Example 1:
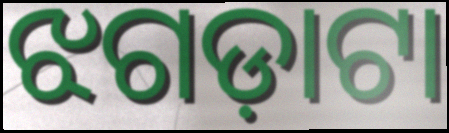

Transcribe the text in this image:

ଝଗଡ଼ାଟା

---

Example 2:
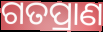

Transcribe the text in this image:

ଗତପ୍ରାଣ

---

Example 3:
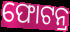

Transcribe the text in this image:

ଫୋଟନ୍ର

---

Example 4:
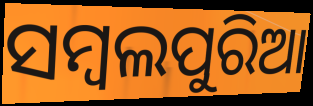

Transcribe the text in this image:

ସମ୍ୱଲପୁରିଆ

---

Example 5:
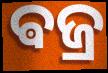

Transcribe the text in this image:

ଵଜ୍ର